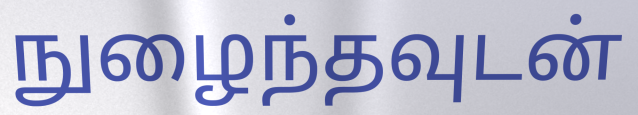
நுழைந்தவுடன்